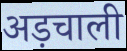
अड़चाली